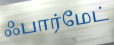
ஃபார்மேட்